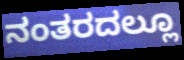
ನಂತರದಲ್ಲೂ